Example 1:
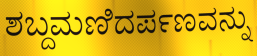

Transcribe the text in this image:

ಶಬ್ದಮಣಿದರ್ಪಣವನ್ನು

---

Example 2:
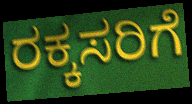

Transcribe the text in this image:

ರಕ್ಕಸರಿಗೆ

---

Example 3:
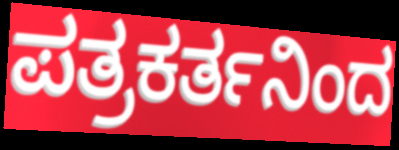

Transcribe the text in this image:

ಪತ್ರಕರ್ತನಿಂದ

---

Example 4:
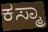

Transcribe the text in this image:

ಕಸ್ಮಾ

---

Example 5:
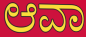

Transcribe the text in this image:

ಆವಾ